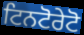
ਟਿਨਟੋਰੇਟੋ